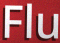
Flu